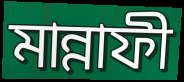
মান্নাফী